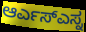
ಆರ್ಎಸ್ಎಸ್ನ